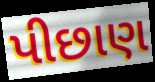
પીછાણ